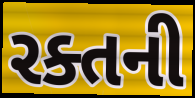
રક્તની